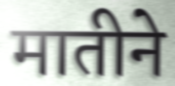
मातीने